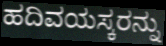
ಹದಿವಯಸ್ಕರನ್ನು